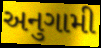
અનુગામી